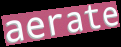
aerate